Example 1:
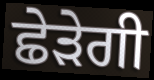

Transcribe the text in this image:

ਛੇੜੇਗੀ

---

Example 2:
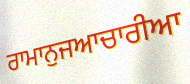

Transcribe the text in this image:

ਰਾਮਾਨੁਜਆਚਾਰੀਆ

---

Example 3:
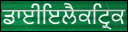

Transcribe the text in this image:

ਡਾਈਇਲੈਕਟ੍ਰਿਕ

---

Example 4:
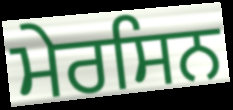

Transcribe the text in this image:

ਮੇਰਸਿਨ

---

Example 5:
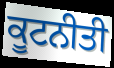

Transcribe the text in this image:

ਕੂਟਨੀਤੀ